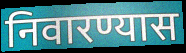
निवारण्यास